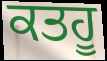
ਕਤਹੂ